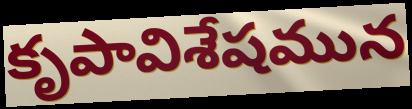
కృపావిశేషమున